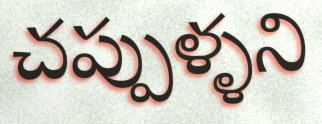
చప్పుళ్ళని